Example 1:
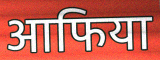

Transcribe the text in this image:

आफिया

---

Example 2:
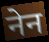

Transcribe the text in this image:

नेन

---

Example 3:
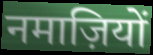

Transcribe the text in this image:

नमाज़ियों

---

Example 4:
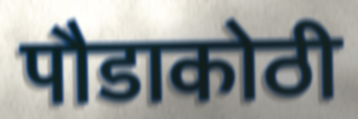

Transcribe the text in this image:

पौडाकोठी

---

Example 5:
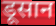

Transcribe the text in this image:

डूसान